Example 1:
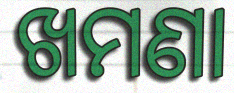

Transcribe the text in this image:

ଖମଣା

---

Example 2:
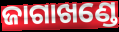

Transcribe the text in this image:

ଜାଗାଖଣ୍ଡେ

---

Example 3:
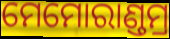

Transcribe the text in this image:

ମେମୋରାଣ୍ଡମ୍ର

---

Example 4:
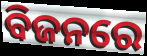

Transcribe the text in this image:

ବିଜନରେ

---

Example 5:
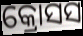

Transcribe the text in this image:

କ୍ରୋସସ